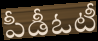
పీడీఓటీ